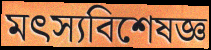
মৎস্যবিশেষজ্ঞ